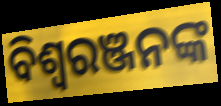
ବିଶ୍ବରଞ୍ଜନଙ୍କ